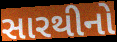
સારથીનો